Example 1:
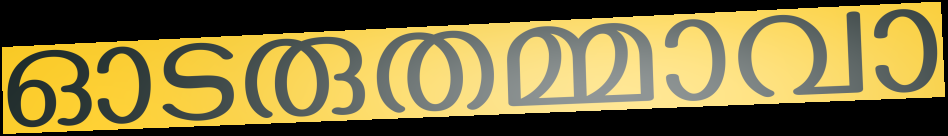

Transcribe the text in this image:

ഓടരുതമ്മാവാ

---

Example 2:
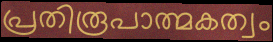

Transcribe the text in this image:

പ്രതിരൂപാത്മകത്വം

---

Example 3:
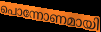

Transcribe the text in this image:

പൊന്നോണമായി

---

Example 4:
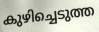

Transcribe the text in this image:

കുഴിച്ചെടുത്ത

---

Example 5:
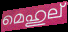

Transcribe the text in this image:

മെഹുല്